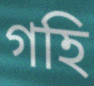
গহি